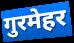
गुरमेहर